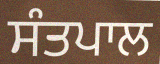
ਸੰਤਪਾਲ